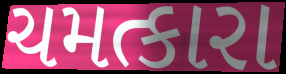
ચમત્કારા